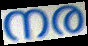
നര